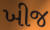
ખીજ